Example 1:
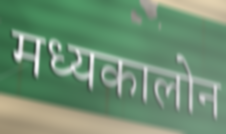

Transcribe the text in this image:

मध्यकालोन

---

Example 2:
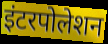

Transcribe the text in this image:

इंटरपोलेशन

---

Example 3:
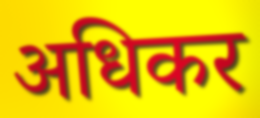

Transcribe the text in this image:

अधिकर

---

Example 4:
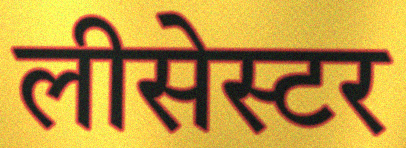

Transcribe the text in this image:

लीसेस्टर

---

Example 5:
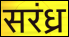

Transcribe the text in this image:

सरंध्र